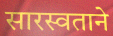
सारस्वताने